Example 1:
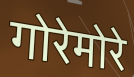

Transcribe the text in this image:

गोरेमोरे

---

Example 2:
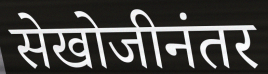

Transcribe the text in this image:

सेखोजीनंतर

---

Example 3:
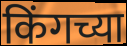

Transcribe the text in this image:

किंगच्या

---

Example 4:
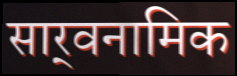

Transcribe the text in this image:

सार्वनामिक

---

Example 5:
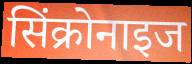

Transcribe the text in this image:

सिंक्रोनाइज